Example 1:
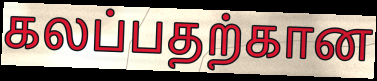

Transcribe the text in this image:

கலப்பதற்கான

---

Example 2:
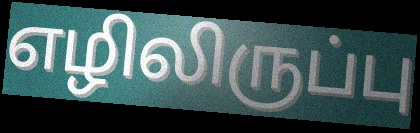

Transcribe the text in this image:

எழிலிருப்பு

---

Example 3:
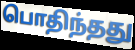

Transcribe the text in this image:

பொதிந்தது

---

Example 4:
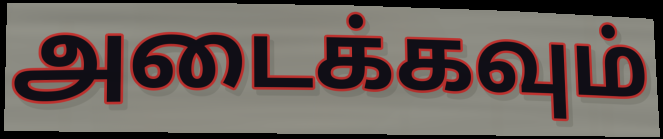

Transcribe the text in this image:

அடைக்கவும்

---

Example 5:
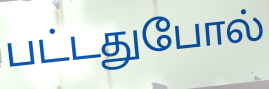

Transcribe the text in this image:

பட்டதுபோல்